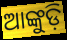
ଆଙ୍କୁଡ଼ି